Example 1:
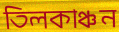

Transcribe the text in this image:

তিলকাঞ্চন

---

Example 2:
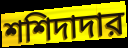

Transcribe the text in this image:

শশিদাদার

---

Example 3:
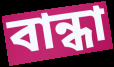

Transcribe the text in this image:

বান্ধা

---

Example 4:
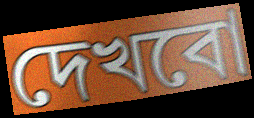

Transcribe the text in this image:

দেখবো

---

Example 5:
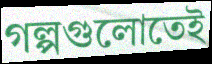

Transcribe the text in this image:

গল্পগুলোতেই